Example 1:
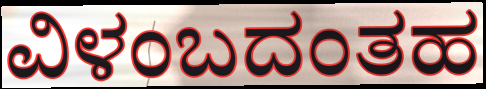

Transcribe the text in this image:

ವಿಳಂಬದಂತಹ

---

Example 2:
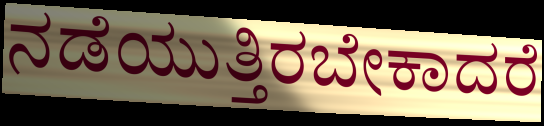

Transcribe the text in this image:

ನಡೆಯುತ್ತಿರಬೇಕಾದರೆ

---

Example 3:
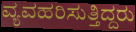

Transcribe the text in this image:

ವ್ಯವಹರಿಸುತ್ತಿದ್ದರು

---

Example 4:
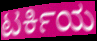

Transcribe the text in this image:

ಟರ್ಕಿಯ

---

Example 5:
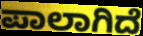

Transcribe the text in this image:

ಪಾಲಾಗಿದೆ